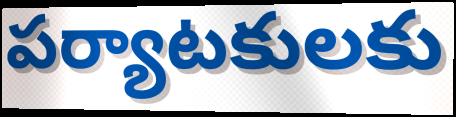
పర్యాటకులకు